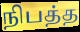
நிபத்த